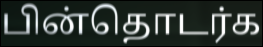
பின்தொடர்க